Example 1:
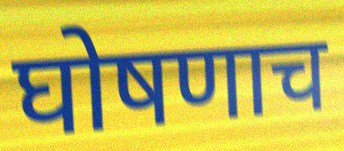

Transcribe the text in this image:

घोषणाच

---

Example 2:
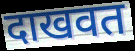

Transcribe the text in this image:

दाखवत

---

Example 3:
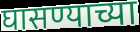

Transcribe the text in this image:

घासण्याच्या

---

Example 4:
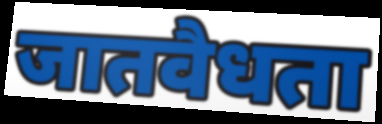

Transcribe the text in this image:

जातवैधता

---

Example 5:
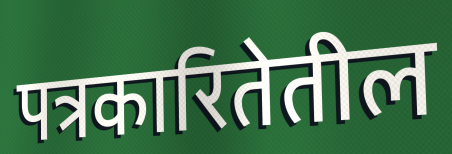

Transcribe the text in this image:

पत्रकारितेतील